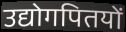
उद्योगपितयों